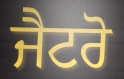
ਜੈਟਰੋ